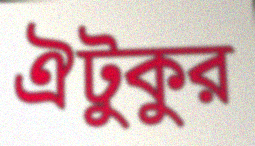
ঐটুকুর